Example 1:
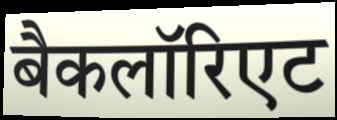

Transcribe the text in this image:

बैकलॉरिएट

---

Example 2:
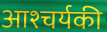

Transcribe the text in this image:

आश्चर्यकी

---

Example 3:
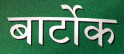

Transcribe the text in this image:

बार्टोक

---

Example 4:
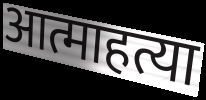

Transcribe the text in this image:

आत्माहत्या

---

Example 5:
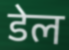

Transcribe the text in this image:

डेल